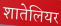
शातेलियर